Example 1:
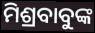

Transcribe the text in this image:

ମିଶ୍ରବାବୁଙ୍କ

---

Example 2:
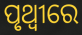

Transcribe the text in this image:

ପୃଥ୍ୱୀରେ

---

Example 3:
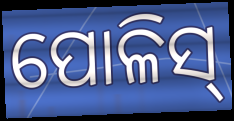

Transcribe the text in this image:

ପୋଳିସ୍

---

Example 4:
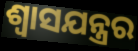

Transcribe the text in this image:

ଶ୍ୱାସଯନ୍ତ୍ରର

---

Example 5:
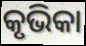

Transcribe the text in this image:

କୃଭିକା